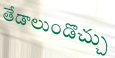
తేడాలుండొచ్చు